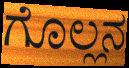
ಗೊಲ್ಲನ